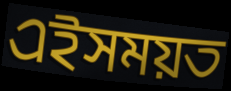
এইসময়ত